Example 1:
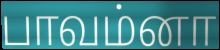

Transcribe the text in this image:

பாவம்னா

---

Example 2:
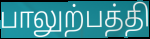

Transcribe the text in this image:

பாலுற்பத்தி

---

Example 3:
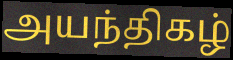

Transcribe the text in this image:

அயந்திகழ்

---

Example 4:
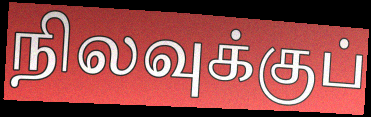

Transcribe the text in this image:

நிலவுக்குப்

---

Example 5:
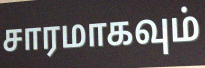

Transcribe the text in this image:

சாரமாகவும்